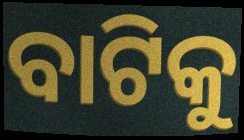
ବାଟିକୁ